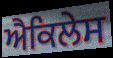
ਐਕਿਲੇਸ